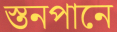
স্তনপানে